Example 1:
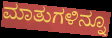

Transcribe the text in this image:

ಮಾತುಗಳಿನ್ನೂ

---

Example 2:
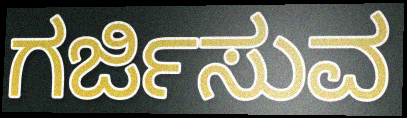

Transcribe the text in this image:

ಗರ್ಜಿಸುವ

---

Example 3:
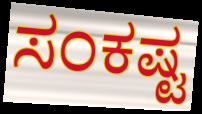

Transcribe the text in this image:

ಸಂಕಷ್ಟ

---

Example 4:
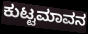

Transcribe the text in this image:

ಕುಟ್ಟಮಾವನ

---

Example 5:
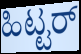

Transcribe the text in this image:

ಹಿಟ್ಟರ್